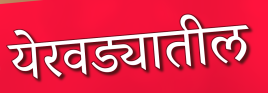
येरवड्यातील